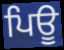
ਪਿਊ